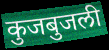
कुजबुजली